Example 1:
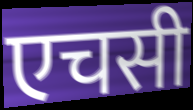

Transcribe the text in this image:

एचसी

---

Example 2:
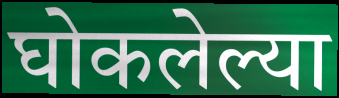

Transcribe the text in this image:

घोकलेल्या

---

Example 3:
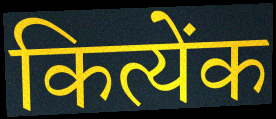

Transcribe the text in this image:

कित्येंक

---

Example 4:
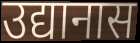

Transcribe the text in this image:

उद्यानास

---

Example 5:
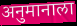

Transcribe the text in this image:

अनुमानाला